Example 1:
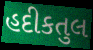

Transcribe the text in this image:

હદીકતુલ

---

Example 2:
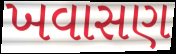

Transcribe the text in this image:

ખવાસણ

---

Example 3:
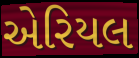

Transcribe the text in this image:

એરિયલ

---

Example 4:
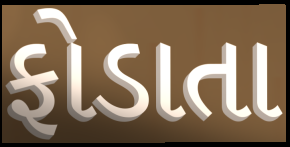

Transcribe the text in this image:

ફોડાતા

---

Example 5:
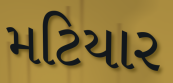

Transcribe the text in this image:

મટિયાર